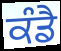
ਕੰਡੈ